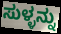
ಸುಳ್ಳನ್ನು